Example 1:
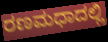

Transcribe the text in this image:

ರಣಮಧಾದಲ್ಲಿ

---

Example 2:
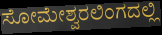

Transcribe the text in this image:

ಸೋಮೇಶ್ವರಲಿಂಗದಲ್ಲಿ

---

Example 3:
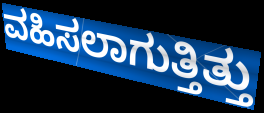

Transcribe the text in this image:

ವಹಿಸಲಾಗುತ್ತಿತ್ತು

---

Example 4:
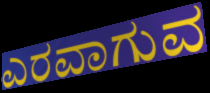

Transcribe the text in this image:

ಎರವಾಗುವ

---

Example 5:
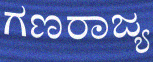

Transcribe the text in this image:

ಗಣರಾಜ್ಯ